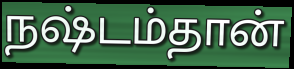
நஷ்டம்தான்